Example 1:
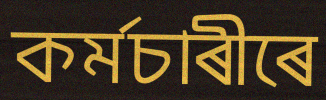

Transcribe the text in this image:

কৰ্মচাৰীৰে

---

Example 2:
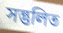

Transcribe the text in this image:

সন্তুলিত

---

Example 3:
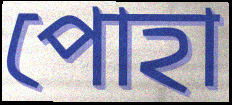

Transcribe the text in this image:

পোহা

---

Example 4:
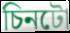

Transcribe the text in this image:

চিনটো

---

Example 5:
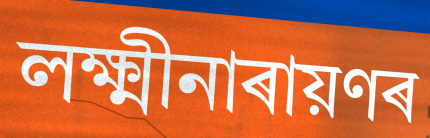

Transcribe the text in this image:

লক্ষ্মীনাৰায়ণৰ